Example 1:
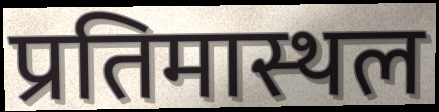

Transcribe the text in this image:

प्रतिमास्थल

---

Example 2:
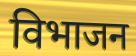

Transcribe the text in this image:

विभाजन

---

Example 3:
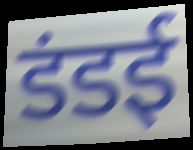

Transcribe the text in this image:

डंडई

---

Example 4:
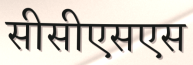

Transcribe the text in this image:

सीसीएसएस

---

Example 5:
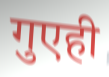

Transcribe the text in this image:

गुएही